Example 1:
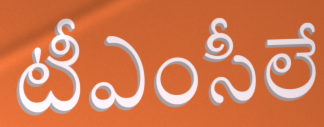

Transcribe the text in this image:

టీఎంసీలే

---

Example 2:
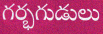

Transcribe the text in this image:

గర్భగుడులు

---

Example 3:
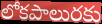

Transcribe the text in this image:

లోకపాలురకు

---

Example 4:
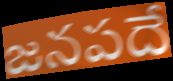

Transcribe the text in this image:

జనపదే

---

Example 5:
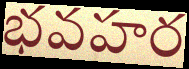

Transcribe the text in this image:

భవహర